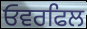
ਓਵਰਫਿਲ